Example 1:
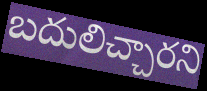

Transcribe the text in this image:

బదులిచ్చారని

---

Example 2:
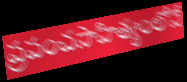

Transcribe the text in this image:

ప్రపంచసాహిత్యంలోనే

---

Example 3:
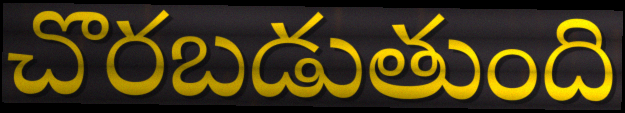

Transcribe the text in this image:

చొరబడుతుంది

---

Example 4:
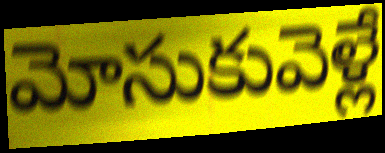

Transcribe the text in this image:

మోసుకువెళ్లే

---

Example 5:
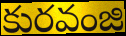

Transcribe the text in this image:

కురవంజి